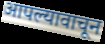
आपल्यावाचून